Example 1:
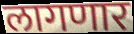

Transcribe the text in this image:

लागणार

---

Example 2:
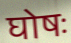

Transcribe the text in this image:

घोषः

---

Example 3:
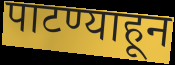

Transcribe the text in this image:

पाटण्याहून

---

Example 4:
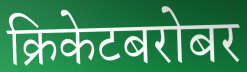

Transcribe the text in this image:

क्रिकेटबरोबर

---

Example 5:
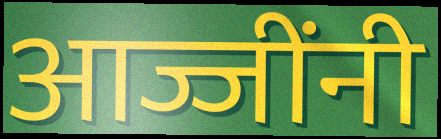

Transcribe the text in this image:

आज्जींनी